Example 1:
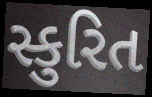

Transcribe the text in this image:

સ્કુરિત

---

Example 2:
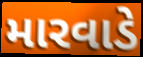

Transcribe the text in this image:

મારવાડે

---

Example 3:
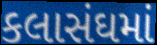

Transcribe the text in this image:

કલાસંઘમાં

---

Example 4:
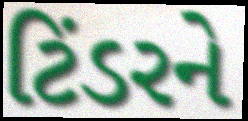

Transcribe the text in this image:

ટિંડરને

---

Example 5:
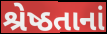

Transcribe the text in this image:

શ્રેષ્ઠતાનાં